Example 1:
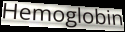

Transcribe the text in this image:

Hemoglobin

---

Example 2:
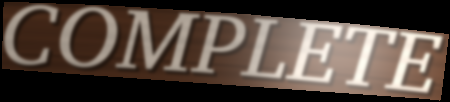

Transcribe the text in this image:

COMPLETE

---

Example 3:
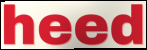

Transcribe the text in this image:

heed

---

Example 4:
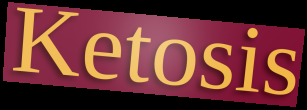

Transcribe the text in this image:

Ketosis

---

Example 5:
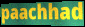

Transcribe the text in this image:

paachhad